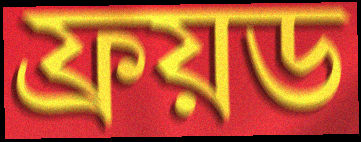
ফ্ৰয়ড